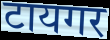
टायगर